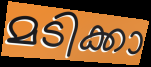
മടിക്കാ